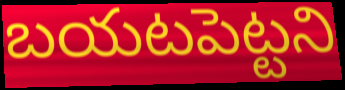
బయటపెట్టని